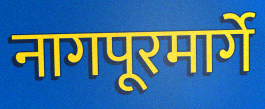
नागपूरमार्गे